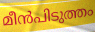
മീൻപിടുത്തം